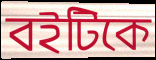
বইটিকে